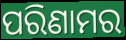
ପରିଣାମର